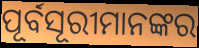
ପୂର୍ବସୂରୀମାନଙ୍କର